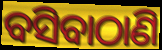
ବସିବାଠାଣି